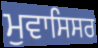
ਮੁਵਾਸਿਸਰ